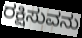
ರಕ್ಷಿಸುವನು